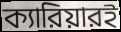
ক্যারিয়ারই